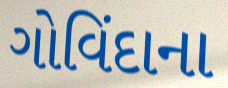
ગોવિંદાના